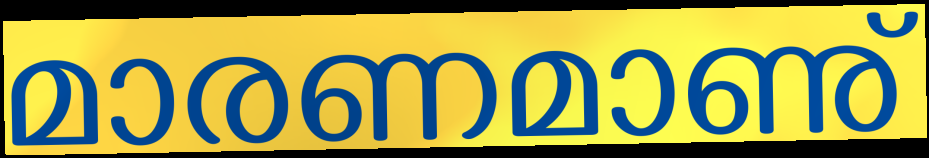
മാരണമാണു്